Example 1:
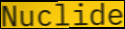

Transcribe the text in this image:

Nuclide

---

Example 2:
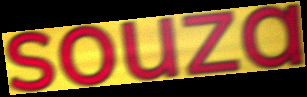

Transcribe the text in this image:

souza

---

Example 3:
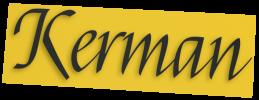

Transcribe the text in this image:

Kerman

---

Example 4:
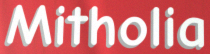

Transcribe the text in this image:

Mitholia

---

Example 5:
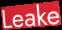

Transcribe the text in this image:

Leake